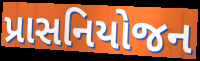
પ્રાસનિયોજન